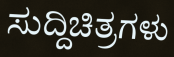
ಸುದ್ದಿಚಿತ್ರಗಳು